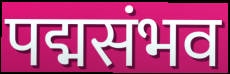
पद्मसंभव